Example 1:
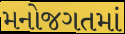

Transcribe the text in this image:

મનોજગતમાં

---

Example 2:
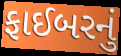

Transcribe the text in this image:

ફાઈબરનું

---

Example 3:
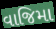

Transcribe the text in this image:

વાજિમા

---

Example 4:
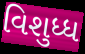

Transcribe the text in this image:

વિશુધ્ધ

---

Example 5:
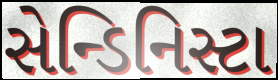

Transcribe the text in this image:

સેન્ડિનિસ્ટા